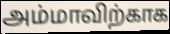
அம்மாவிற்காக